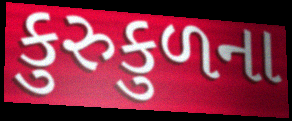
કુરુકુળના